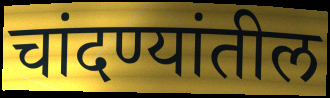
चांदण्यांतील